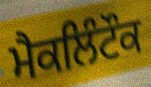
ਮੈਕਲਿੰਟੌਕ